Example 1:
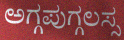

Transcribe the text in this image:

ಅಗ್ಗಪುಗ್ಗಲಸ್ಸ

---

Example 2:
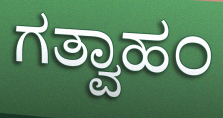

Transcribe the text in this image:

ಗತ್ವಾಹಂ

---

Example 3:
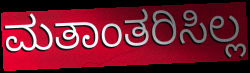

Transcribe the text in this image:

ಮತಾಂತರಿಸಿಲ್ಲ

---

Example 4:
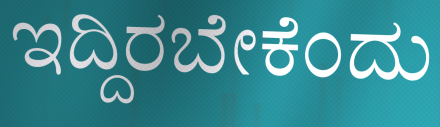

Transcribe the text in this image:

ಇದ್ದಿರಬೇಕೆಂದು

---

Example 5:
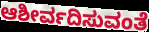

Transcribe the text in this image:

ಆಶೀರ್ವದಿಸುವಂತೆ